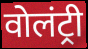
वोलंट्री